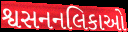
શ્વસનનલિકાઓ